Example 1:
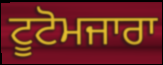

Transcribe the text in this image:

ਟੂਟੋਮਜਾਰਾ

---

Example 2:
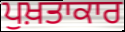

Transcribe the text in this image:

ਪੁਖ਼ਤਾਕਾਰ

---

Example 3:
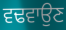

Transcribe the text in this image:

ਵਢਵਾਉਣ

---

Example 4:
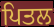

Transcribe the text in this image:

ਪਿਤਲ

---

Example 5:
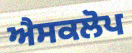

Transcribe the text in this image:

ਐਸਕਲੋਪ